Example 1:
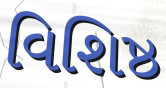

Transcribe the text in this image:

વિશિષ્ઠ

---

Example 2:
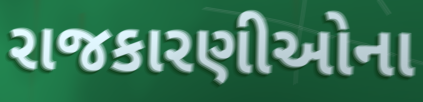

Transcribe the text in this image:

રાજકારણીઓના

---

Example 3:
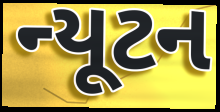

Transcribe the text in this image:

ન્યૂટન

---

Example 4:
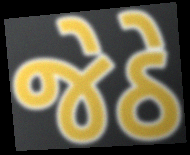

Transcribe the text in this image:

જેઠે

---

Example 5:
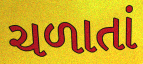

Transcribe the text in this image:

ચળાતાં